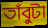
তাঁবুটা